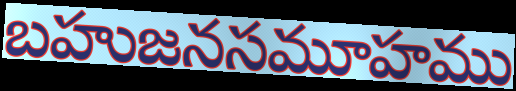
బహుజనసమూహము